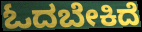
ಓದಬೇಕಿದೆ